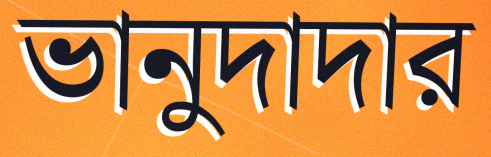
ভানুদাদার